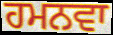
ਹਮਨਵਾ